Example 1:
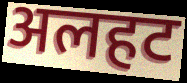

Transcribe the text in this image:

अलहट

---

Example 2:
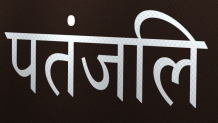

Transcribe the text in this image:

पतंजलि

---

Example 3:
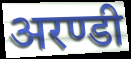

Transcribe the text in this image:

अरण्डी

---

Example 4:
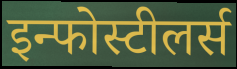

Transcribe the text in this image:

इन्फोस्टीलर्स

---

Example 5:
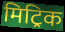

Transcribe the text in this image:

मिट्रिक